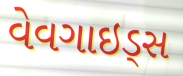
વેવગાઇડ્સ